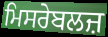
ਮਿਸਰੇਬਲਜ਼